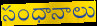
సంధానాలు